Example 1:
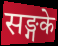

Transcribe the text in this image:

सङ्गके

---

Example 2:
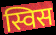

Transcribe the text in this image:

स्विस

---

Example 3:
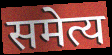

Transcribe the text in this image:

समेत्य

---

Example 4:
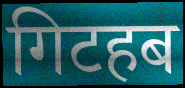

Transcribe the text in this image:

गिटहब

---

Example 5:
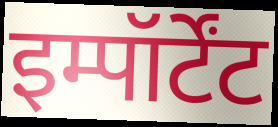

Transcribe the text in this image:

इम्पॉर्टेंट